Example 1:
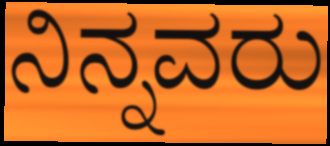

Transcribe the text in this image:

ನಿನ್ನವರು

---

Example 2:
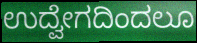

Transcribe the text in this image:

ಉದ್ವೇಗದಿಂದಲೂ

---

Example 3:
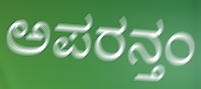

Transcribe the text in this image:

ಅಪರನ್ತಂ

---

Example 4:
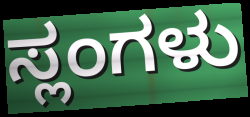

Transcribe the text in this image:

ಸ್ಲಂಗಳು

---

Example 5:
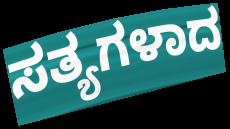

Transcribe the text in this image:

ಸತ್ಯಗಳಾದ